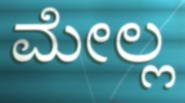
ಮೇಲ್ಲ